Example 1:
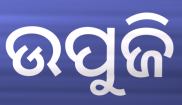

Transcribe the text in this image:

ଉପୁଜି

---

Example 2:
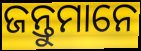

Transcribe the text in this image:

ଜନ୍ତୁମାନେ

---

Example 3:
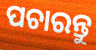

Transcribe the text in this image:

ପଚାରନ୍ତୁ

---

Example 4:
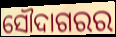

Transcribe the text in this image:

ସୌଦାଗରର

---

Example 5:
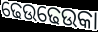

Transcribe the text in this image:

ଢେଉଢେଉକା